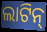
ଲାଟିନ୍